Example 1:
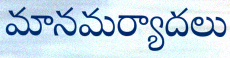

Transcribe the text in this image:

మానమర్యాదలు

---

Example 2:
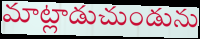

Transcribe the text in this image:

మాట్లాడుచుండును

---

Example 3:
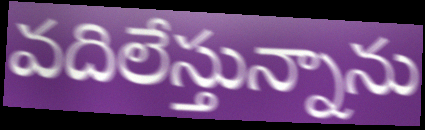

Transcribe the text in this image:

వదిలేస్తున్నాను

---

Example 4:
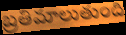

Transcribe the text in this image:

బ్రతిమాలుతుంది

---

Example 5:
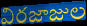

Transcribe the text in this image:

విరజాజుల